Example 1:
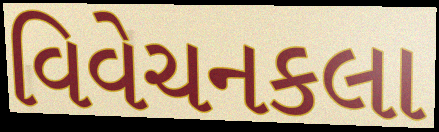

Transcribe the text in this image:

વિવેચનકલા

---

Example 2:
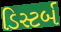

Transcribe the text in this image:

ડિસ્ટર્બ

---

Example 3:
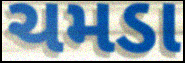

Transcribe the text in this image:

ચમડા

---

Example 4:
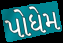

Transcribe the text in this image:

પોધેમ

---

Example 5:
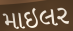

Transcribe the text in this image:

માઇલર